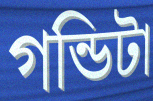
গন্ডিটা